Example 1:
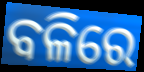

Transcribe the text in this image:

ବଳିରେ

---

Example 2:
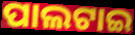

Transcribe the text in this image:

ପାଲଟାଇ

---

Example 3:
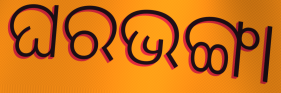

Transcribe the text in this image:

ଘରଭଙ୍ଗା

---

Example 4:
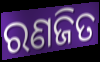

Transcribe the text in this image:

ରଣଜିତ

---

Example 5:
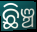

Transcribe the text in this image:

ଛିଞ୍ଚ